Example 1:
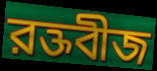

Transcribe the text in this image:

রক্তবীজ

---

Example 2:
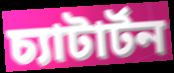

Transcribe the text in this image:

চ্যাটার্টন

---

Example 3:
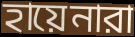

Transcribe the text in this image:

হায়েনারা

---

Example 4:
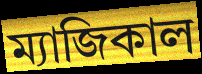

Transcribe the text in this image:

ম্যাজিকাল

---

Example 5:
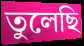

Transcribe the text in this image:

তুলেছি